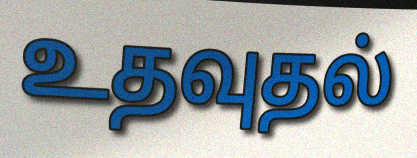
உதவுதல்